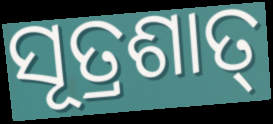
ସୂତ୍ରଶାତ୍